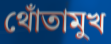
থোঁতামুখ